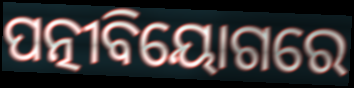
ପତ୍ନୀବିୟୋଗରେ